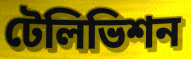
টেলিভিশন